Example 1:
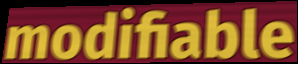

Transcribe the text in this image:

modifiable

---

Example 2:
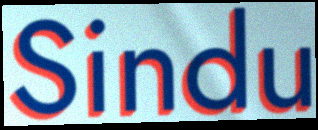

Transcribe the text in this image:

Sindu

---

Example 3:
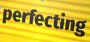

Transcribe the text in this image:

perfecting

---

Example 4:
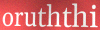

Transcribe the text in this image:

oruththi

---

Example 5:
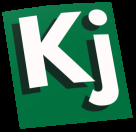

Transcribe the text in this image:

Kj